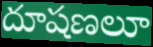
దూషణలూ